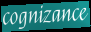
cognizance